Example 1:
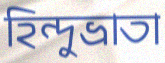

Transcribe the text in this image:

হিন্দুভ্রাতা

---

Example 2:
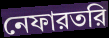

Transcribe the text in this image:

নেফারতরি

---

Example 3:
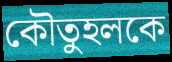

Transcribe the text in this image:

কৌতুহলকে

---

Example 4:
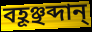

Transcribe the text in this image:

বহূঞ্ছব্দান্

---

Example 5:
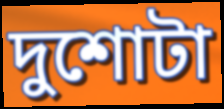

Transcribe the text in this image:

দুশোটা